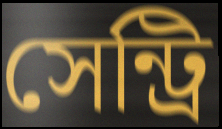
সেন্ট্রি